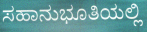
ಸಹಾನುಭೂತಿಯಲ್ಲಿ